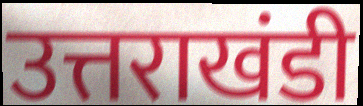
उत्तराखंडी